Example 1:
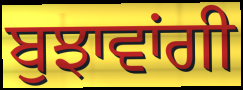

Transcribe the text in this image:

ਬੁਝਾਵਾਂਗੀ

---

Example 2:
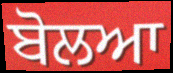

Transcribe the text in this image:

ਬੋਲਆ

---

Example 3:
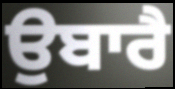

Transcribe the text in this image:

ਉਬਾਰੈ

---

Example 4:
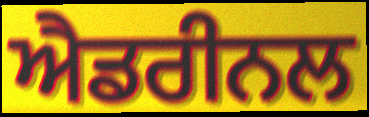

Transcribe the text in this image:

ਐਡਰੀਨਲ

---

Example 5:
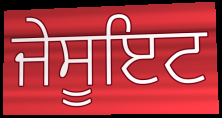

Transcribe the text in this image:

ਜੇਸੂਇਟ